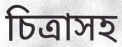
চিত্রাসহ